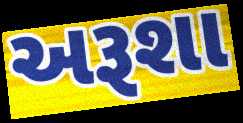
અરૂશા